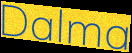
Dalma